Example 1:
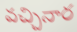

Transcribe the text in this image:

వచ్చినార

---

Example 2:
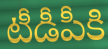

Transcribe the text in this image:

టీడీపీకి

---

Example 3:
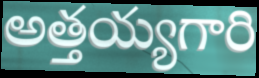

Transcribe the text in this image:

అత్తయ్యగారి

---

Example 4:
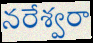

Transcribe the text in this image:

నరేశ్వరా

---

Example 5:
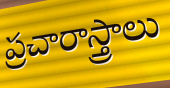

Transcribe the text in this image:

ప్రచారాస్త్రాలు